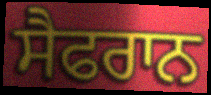
ਸੈਫਰਾਨ